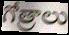
గోత్రాలు